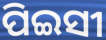
ପିଇସୀ